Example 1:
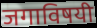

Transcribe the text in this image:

जगाविषयी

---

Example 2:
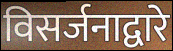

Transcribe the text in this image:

विसर्जनाद्वारे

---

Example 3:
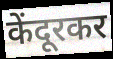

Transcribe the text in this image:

केंदूरकर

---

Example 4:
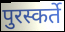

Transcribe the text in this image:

पुरस्कर्ते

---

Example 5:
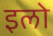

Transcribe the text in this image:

इलो